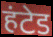
हंटेड